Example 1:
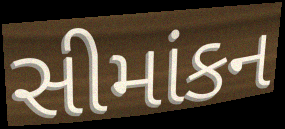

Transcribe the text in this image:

સીમાંકન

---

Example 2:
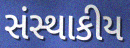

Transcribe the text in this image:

સંસ્થાકીય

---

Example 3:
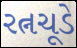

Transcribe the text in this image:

રત્નચૂડે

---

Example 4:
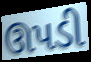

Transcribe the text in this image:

ઊપડી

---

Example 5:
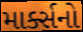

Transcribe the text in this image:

માર્ક્સનો